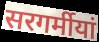
सरगर्मीयां